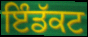
ਇੰਡੱਕਟ